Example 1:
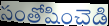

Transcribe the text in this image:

సంతోషించెడి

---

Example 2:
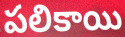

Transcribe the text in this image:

పలికాయి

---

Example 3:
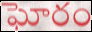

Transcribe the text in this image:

ఘోరం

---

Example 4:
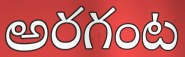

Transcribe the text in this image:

అరగంట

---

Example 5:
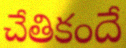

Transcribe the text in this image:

చేతికందే